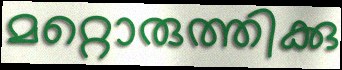
മറ്റൊരുത്തിക്കു